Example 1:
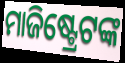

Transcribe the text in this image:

ମାଜିଷ୍ଟ୍ରେଟଙ୍କ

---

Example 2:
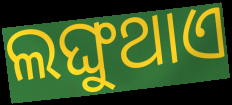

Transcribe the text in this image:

ଲଙ୍ଘୁଥାଏ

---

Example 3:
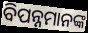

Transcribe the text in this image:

ବିପନ୍ନମାନଙ୍କ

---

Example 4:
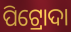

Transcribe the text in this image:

ପିଟ୍ରୋଦା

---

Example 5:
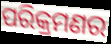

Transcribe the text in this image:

ପରିକ୍ରମଣର